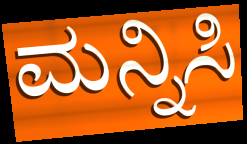
ಮನ್ನಿಸಿ